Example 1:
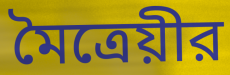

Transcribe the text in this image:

মৈত্রেয়ীর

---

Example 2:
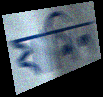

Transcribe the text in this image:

যামিন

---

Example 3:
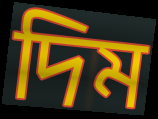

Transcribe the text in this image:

দিম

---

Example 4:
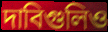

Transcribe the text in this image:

দাবিগুলিও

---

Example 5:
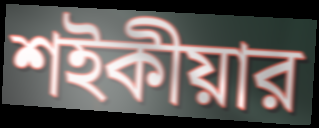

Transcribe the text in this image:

শইকীয়ার